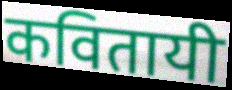
कवितायी